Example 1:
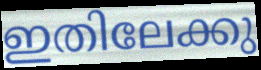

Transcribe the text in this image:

ഇതിലേക്കു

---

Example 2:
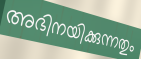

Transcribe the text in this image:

അഭിനയിക്കുന്നതും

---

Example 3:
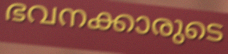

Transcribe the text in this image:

ഭവനക്കാരുടെ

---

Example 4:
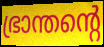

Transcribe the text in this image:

ഭ്രാന്തന്റെ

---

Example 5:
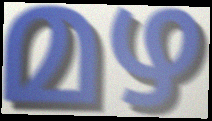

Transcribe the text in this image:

മഴ